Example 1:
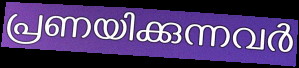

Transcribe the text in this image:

പ്രണയിക്കുന്നവർ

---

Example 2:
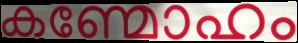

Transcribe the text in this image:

കണ്മോഹം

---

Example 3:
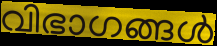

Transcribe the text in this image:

വിഭാഗങ്ങൾ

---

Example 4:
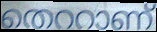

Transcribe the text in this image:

തെററാണ്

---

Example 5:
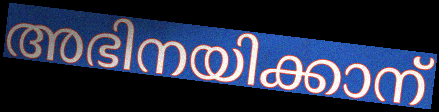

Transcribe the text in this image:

അഭിനയിക്കാന്